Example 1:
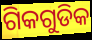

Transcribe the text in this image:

ଗିକଗୁଡିକ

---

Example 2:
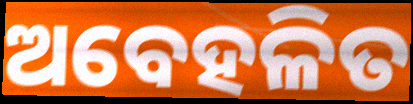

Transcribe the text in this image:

ଅବେହଳିତ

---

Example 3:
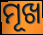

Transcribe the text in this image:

ମୂଖ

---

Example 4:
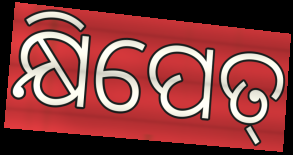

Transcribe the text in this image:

କ୍ଷିପେତ୍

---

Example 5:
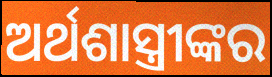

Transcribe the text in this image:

ଅର୍ଥଶାସ୍ତ୍ରୀଙ୍କର